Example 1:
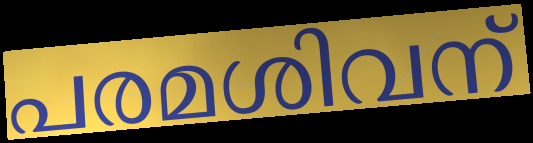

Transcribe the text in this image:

പരമശിവന്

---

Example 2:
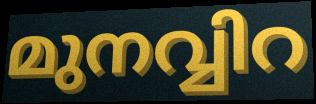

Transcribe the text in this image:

മുനവ്വിറ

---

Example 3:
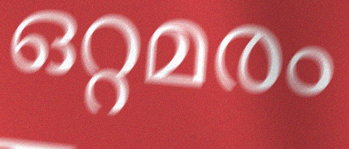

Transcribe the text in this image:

ഒറ്റമരം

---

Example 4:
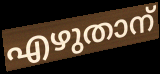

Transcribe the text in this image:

എഴുതാന്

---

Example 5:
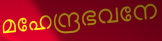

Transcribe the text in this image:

മഹേന്ദ്രഭവനേ